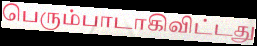
பெரும்பாடாகிவிட்டது